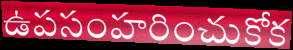
ఉపసంహరించుకోక